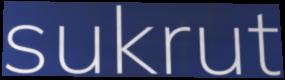
sukrut